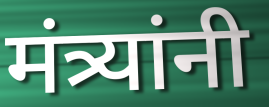
मंत्र्यांनी